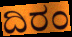
ದಿರಂ